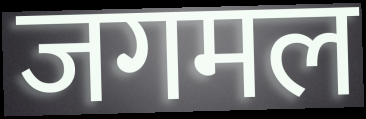
जगमल